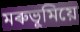
মৰুভূমিয়ে